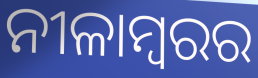
ନୀଳାମ୍ବରର